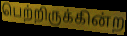
பெற்றிருக்கின்ற